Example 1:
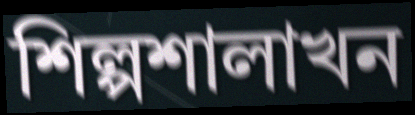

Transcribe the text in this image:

শিল্পশালাখন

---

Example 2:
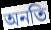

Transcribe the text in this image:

অনতি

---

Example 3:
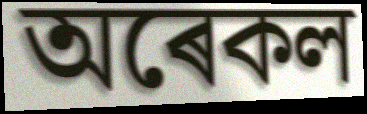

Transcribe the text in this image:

অৰেকল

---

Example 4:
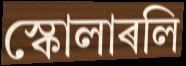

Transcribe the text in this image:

স্কোলাৰলি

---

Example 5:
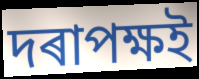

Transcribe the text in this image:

দৰাপক্ষই